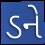
ડને